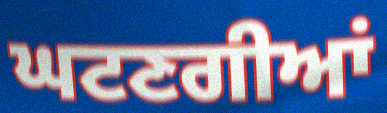
ਘਟਣਗੀਆਂ